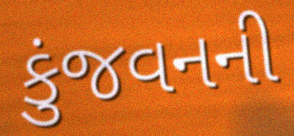
કુંજવનની